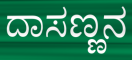
ದಾಸಣ್ಣನ